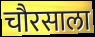
चौरसाला